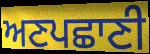
ਅਣਪਛਾਣੀ